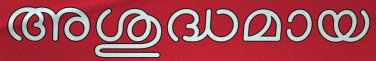
അശുദ്ധമായ